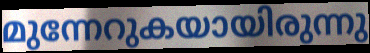
മുന്നേറുകയായിരുന്നു